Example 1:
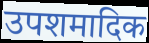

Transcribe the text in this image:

उपशमादिक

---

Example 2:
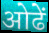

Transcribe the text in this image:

ओढें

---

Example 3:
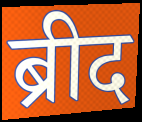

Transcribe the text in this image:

ब्रीद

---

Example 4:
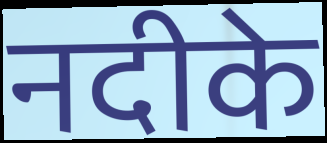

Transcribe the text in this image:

नदीके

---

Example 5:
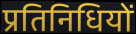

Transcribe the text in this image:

प्रतिनिधियों